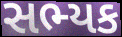
સભ્યક